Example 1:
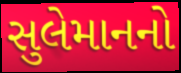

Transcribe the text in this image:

સુલેમાનનો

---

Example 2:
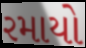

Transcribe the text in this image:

રમાયો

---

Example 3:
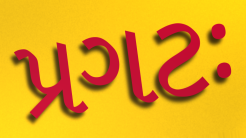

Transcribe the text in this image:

પ્રગટઃ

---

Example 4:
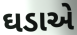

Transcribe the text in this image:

ઘડાએ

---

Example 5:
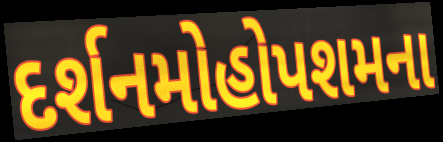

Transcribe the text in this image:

દર્શનમોહોપશમના